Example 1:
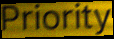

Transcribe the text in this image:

Priority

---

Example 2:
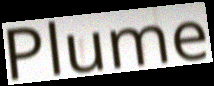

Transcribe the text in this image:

Plume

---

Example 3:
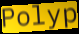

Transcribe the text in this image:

Polyp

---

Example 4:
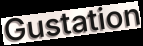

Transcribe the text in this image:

Gustation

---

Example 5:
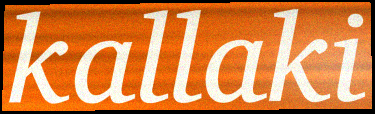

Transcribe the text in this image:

kallaki